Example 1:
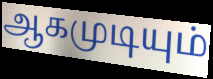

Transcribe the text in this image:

ஆகமுடியும்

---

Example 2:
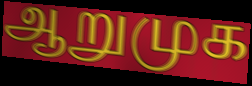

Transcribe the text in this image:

ஆறுமுக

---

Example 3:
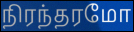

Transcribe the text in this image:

நிரந்தரமோ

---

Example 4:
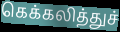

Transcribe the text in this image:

கெக்கலித்துச்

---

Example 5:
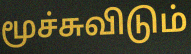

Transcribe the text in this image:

மூச்சுவிடும்